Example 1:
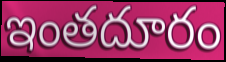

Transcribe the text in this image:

ఇంతదూరం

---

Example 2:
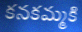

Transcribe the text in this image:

కనకమ్మకి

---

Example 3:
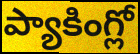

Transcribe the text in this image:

ప్యాకింగ్లో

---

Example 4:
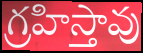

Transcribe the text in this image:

గ్రహిస్తావు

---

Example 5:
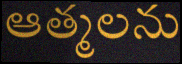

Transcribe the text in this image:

ఆత్మలను